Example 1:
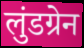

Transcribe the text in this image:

लुंडग्रेन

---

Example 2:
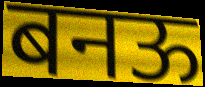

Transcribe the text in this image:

बनऊ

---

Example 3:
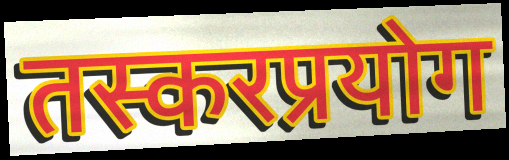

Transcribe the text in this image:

तस्करप्रयोग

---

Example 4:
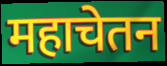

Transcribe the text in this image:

महाचेतन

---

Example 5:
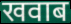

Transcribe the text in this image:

खवाब